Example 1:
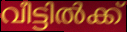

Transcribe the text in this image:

വീട്ടിൽക്ക്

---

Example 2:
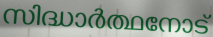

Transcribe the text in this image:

സിദ്ധാർത്ഥനോട്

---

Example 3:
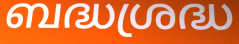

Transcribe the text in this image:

ബദ്ധശ്രദ്ധ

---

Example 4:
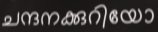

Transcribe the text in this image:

ചന്ദനക്കുറിയോ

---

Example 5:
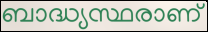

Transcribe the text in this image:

ബാദ്ധ്യസ്ഥരാണ്